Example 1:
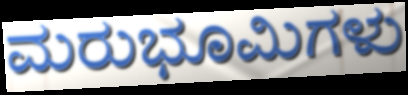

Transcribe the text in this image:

ಮರುಭೂಮಿಗಳು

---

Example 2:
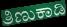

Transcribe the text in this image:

ತಿಣುಕಾಡಿ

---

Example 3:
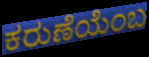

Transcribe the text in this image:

ಕರುಣೆಯೆಂಬ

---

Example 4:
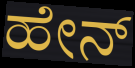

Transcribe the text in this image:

ಹೇನ್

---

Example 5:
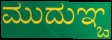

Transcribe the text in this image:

ಮುದುಞ್ಚ